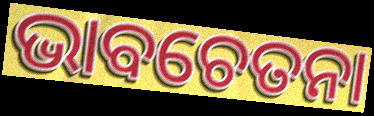
ଭାବଚେତନା